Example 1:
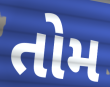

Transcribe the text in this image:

તોમ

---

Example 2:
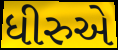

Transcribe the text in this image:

ધીરુએ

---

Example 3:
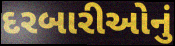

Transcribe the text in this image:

દરબારીઓનું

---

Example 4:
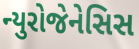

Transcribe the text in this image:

ન્યુરોજેનેસિસ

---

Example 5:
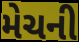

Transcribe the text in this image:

મેચની